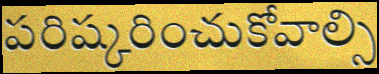
పరిష్కరించుకోవాల్సి